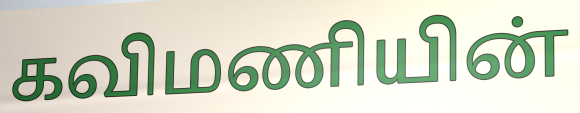
கவிமணியின்